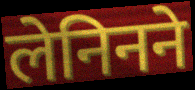
लेनिनने